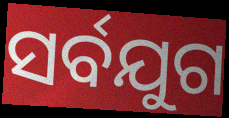
ସର୍ବଯୁଗ